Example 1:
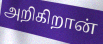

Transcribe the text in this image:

அறிகிறான்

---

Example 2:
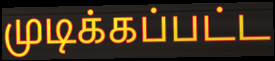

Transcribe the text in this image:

முடிக்கப்பட்ட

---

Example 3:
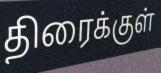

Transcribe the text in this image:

திரைக்குள்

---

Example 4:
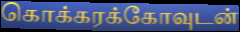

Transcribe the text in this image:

கொக்கரக்கோவுடன்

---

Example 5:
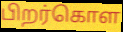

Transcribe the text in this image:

பிறர்கொள